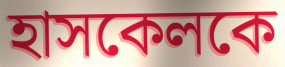
হাসকেলকে